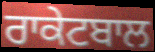
ਰਾਕੇਟਬਾਲ